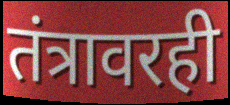
तंत्रावरही